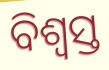
ବିଶ୍ବସ୍ତ